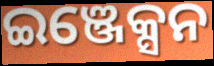
ଇଞ୍ଜେକ୍ସନ